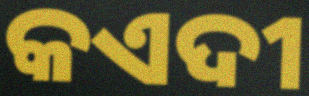
କଏଦୀ